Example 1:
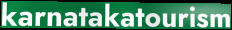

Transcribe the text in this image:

karnatakatourism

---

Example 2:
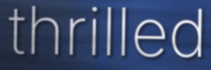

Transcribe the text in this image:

thrilled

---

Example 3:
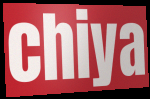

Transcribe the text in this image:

chiya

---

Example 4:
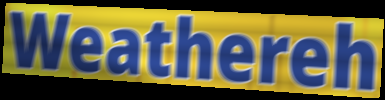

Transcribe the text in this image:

Weathereh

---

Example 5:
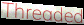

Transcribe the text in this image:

Threaded